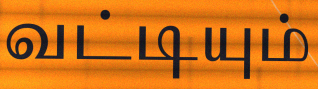
வட்டியும்